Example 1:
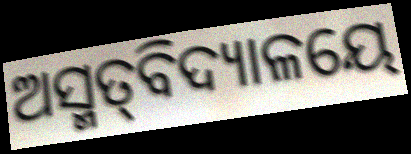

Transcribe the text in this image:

ଅସ୍ମତ୍‌ବିଦ୍ୟାଳୟେ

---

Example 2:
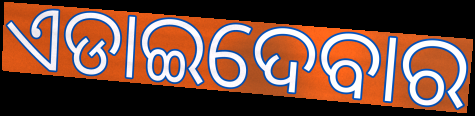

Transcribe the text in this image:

ଏଡାଇଦେବାର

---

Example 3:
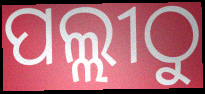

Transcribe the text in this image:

ପଲ୍ଲୀଠୁ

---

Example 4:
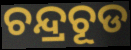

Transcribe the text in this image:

ଚନ୍ଦ୍ରଚୂଡ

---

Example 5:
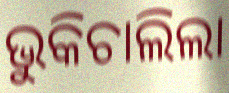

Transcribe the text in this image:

ଭୁକିଚାଲିଲା